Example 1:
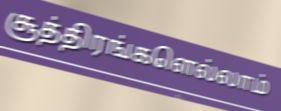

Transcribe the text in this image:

சூத்திரங்களெல்லாம்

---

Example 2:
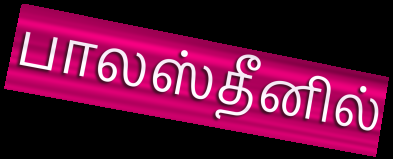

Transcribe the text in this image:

பாலஸ்தீனில்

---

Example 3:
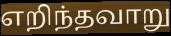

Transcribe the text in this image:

எறிந்தவாறு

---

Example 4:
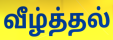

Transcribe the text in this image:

வீழ்த்தல்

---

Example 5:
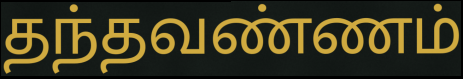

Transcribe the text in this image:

தந்தவண்ணம்